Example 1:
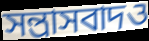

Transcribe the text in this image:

সন্ত্রাসবাদও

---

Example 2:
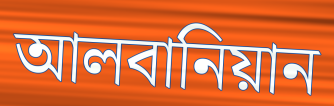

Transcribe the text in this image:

আলবানিয়ান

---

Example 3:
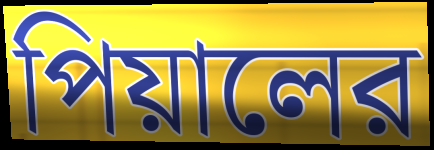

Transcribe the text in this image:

পিয়ালের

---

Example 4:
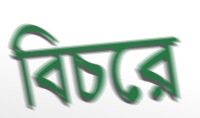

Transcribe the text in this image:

বিচরে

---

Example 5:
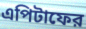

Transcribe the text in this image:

এপিটাফের